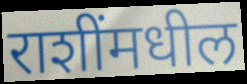
राशींमधील